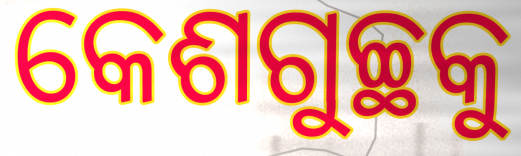
କେଶଗୁଚ୍ଛକୁ